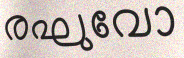
രഘുവോ